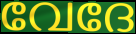
വേദേ